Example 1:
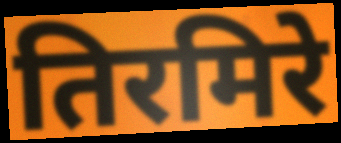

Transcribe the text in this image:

तिरमिरे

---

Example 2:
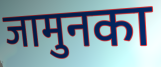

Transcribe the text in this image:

जामुनका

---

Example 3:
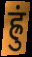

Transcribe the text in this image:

ह्रुं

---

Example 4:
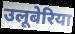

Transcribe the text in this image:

उलूबेरिया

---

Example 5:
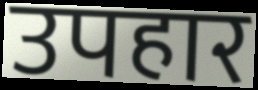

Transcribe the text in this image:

उपहार